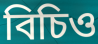
বিচিও